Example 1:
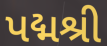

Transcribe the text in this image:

પદ્મશ્રી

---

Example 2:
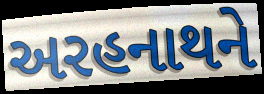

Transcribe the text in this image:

અરહનાથને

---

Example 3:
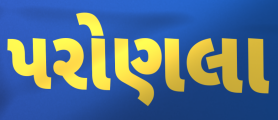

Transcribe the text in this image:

પરોણલા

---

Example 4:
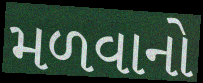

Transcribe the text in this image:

મળવાનો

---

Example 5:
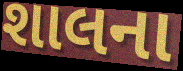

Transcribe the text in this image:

શાલના